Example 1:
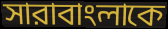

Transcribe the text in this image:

সারাবাংলাকে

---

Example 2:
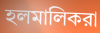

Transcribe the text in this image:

হলমালিকরা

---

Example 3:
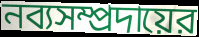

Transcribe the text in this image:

নব্যসম্প্রদায়ের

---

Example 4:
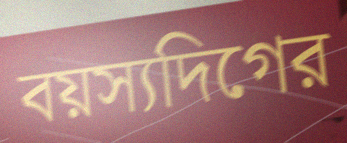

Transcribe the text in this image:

বয়স্যদিগের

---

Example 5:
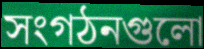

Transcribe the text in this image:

সংগঠনগুলো